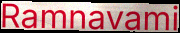
Ramnavami